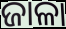
ଜାଳା